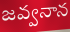
జవ్వనాన